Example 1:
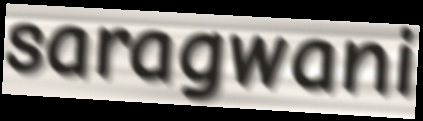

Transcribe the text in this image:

saragwani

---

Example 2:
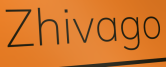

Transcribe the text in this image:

Zhivago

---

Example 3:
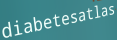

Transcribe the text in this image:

diabetesatlas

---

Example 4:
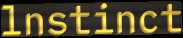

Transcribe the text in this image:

lnstinct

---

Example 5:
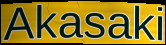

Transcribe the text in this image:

Akasaki